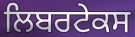
ਲਿਬਰਟੇਕਸ